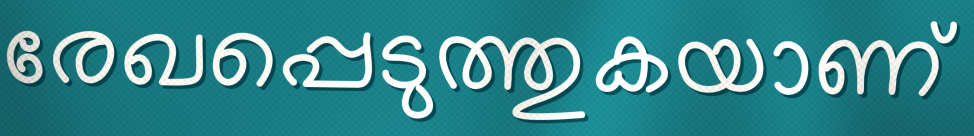
രേഖപ്പെടുത്തുകയാണ്